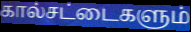
கால்சட்டைகளும்